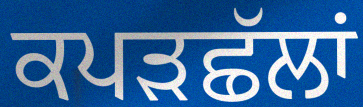
ਕਪੜਛੱਲਾਂ